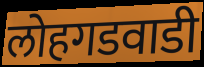
लोहगडवाडी